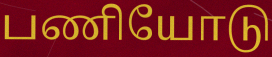
பணியோடு